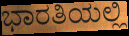
ಭಾರತಿಯಲ್ಲಿ